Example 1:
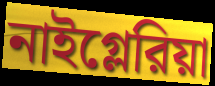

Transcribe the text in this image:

নাইগ্লেরিয়া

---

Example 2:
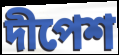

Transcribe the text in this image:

দীপেশ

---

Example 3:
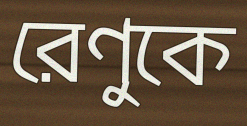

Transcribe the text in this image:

রেণুকে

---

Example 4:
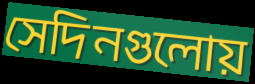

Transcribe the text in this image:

সেদিনগুলোয়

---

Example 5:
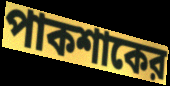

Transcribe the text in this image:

পাকশাকের